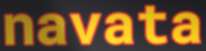
navata